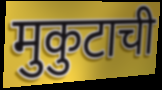
मुकुटाची